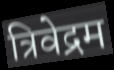
त्रिवेद्रम